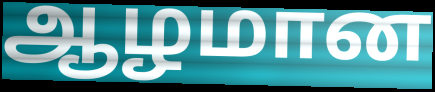
ஆழமான